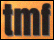
tmf